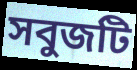
সবুজটি